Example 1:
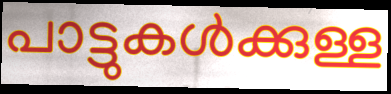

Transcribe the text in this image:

പാട്ടുകൾക്കുള്ള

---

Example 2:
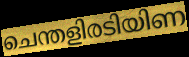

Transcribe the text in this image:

ചെന്തളിരടിയിണ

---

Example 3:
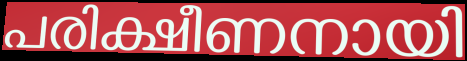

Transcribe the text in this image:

പരിക്ഷീണനായി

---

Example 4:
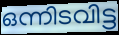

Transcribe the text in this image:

ഒന്നിടവിട്ട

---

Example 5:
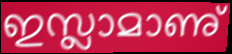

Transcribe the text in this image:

ഇസ്ലാമാണു്